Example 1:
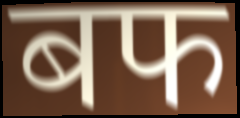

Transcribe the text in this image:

बफ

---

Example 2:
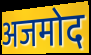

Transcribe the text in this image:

अजमोद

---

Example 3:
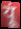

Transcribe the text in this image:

यूं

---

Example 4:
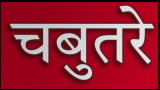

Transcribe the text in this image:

चबुतरे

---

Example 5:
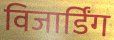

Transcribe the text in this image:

विजार्डिंग